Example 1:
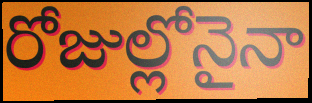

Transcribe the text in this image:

రోజుల్లోనైనా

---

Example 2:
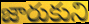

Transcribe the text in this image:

జారుకుని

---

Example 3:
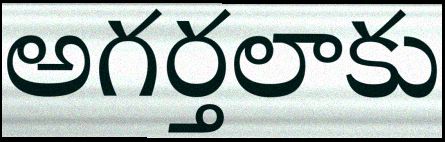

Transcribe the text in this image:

అగర్తలాకు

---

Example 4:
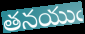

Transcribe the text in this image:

తనయుఁ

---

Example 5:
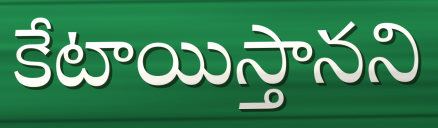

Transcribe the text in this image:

కేటాయిస్తానని